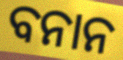
ବନାନ